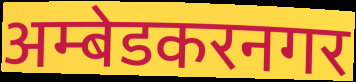
अम्बेडकरनगर